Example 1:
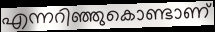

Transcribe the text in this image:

എന്നറിഞ്ഞുകൊണ്ടാണ്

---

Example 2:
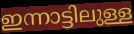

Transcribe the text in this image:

ഇന്നാട്ടിലുള്ള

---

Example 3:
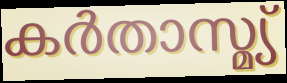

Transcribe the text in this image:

കർതാസ്മ്യ്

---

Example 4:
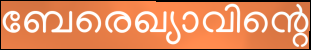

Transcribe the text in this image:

ബേരെഖ്യാവിന്റെ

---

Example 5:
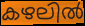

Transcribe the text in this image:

കഴലിൽ